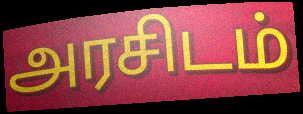
அரசிடம்